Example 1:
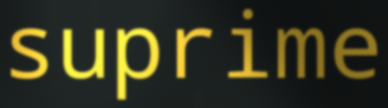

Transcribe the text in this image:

suprime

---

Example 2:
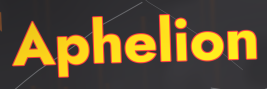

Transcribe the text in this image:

Aphelion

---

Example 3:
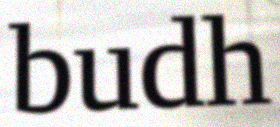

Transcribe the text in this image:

budh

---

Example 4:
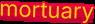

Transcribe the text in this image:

mortuary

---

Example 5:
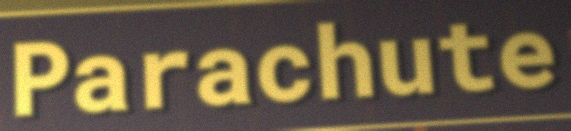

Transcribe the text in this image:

Parachute